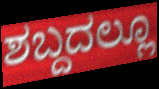
ಶಬ್ದದಲ್ಲೂ